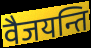
वैजयन्ति